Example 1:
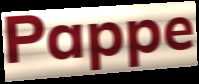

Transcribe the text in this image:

Pappe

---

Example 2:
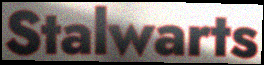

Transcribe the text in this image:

Stalwarts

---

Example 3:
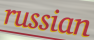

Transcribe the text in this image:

russian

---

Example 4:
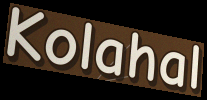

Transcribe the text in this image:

Kolahal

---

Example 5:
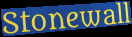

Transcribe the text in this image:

Stonewall